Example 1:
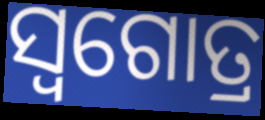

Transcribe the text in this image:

ସ୍ୱଗୋତ୍ର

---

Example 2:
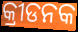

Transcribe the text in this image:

କ୍ରୀଡନକ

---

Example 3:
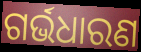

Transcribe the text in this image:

ଗର୍ଭଧାରଣ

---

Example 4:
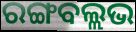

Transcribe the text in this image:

ରଙ୍ଗବଲ୍ଲଭ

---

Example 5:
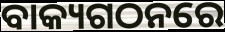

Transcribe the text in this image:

ବାକ୍ୟଗଠନରେ